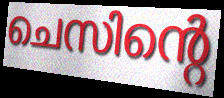
ചെസിന്റെ